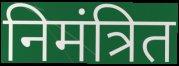
निमंत्रित